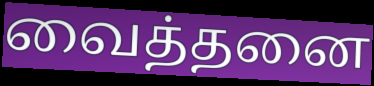
வைத்தனை